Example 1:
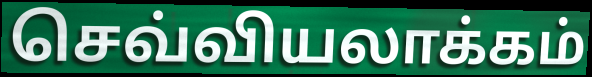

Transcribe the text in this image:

செவ்வியலாக்கம்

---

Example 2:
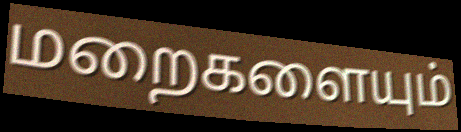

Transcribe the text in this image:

மறைகளையும்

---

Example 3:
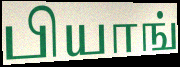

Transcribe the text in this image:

பியாங்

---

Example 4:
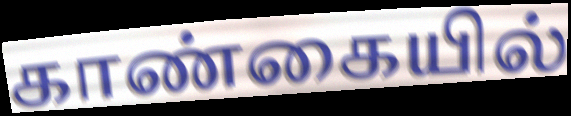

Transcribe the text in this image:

காண்கையில்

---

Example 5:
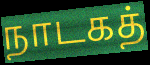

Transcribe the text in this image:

நாடகத்